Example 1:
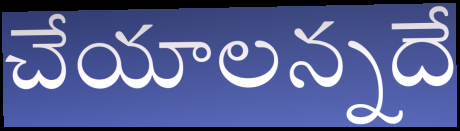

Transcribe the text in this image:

చేయాలన్నదే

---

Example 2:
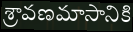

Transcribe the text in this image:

శ్రావణమాసానికి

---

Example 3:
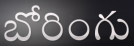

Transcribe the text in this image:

బోరింగు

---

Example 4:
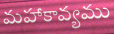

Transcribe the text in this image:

మహాకావ్యము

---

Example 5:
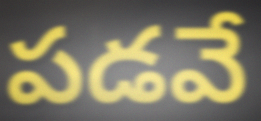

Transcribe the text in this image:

పడవే